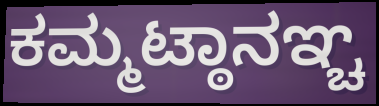
ಕಮ್ಮಟ್ಠಾನಞ್ಚ